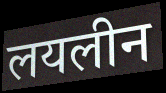
लयलीन